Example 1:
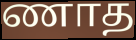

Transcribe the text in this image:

ணாத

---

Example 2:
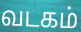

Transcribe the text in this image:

வடகம்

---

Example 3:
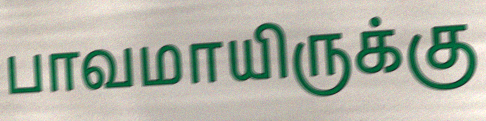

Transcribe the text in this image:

பாவமாயிருக்கு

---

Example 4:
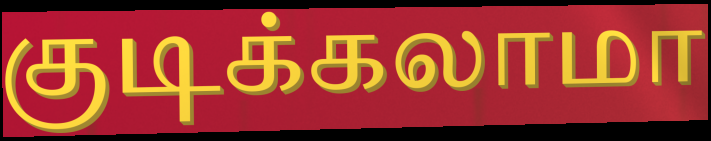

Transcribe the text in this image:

குடிக்கலாமா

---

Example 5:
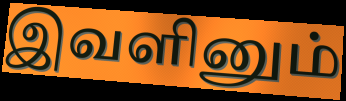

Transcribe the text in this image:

இவளினும்